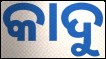
କାଦୁ